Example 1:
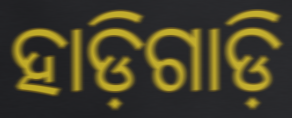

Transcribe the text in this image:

ହାଡ଼ିଗାଡ଼ି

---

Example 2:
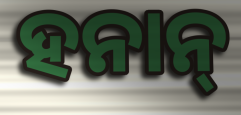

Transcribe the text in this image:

ହନାନ୍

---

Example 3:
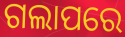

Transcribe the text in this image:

ଗଲାପରେ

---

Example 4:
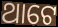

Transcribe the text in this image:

ଥାଟେ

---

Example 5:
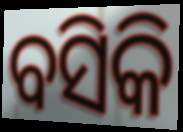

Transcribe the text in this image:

ବସିକି